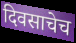
दिवसाचेच